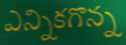
ఎన్నికగొన్న